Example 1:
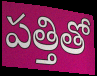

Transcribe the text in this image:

పత్తితో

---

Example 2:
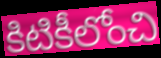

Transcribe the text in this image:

కిటికీలోంచి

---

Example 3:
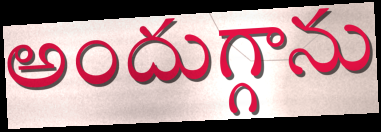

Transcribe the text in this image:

అందుగ్గాను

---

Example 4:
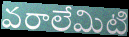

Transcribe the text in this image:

వరాలేమిటి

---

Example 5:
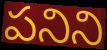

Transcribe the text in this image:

పనిని